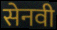
सेनवी